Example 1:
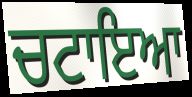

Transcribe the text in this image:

ਚਟਾਇਆ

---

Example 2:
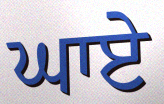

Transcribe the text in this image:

ਘਾਏ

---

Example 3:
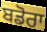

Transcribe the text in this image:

ਬਡੋਰਾ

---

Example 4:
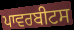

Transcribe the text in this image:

ਪਾਵਰਬੀਟਸ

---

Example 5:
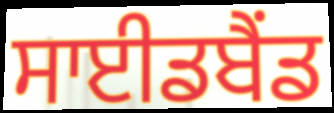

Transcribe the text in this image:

ਸਾਈਡਬੈਂਡ